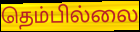
தெம்பில்லை